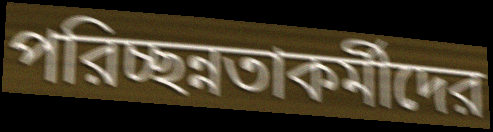
পরিচ্ছন্নতাকর্মীদের